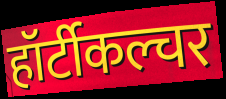
हॉर्टीकल्चर